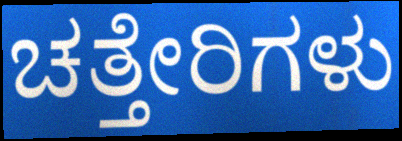
ಚತ್ತೇರಿಗಳು